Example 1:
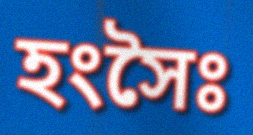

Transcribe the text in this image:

হংসৈঃ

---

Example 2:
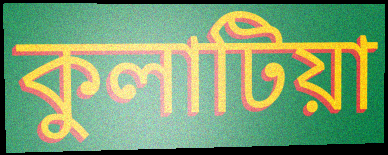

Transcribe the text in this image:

কুলাটিয়া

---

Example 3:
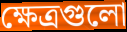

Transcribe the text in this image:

ক্ষেত্রগুলো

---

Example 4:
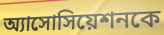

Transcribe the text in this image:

অ্যাসোসিয়েশনকে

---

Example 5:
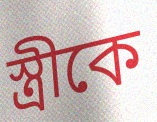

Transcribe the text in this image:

স্ত্রীকে